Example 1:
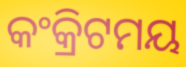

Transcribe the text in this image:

କଂକ୍ରିଟମୟ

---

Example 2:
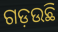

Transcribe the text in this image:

ଗଡ଼ଉଛି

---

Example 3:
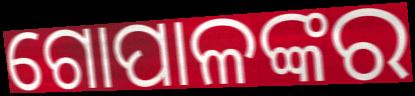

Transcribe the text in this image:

ଗୋପାଳଙ୍କର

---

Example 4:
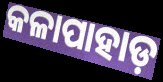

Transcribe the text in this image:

କଳାପାହାଡ଼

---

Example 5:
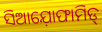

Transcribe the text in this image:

ସିଆଯ଼ୋଫାମିଡ୍